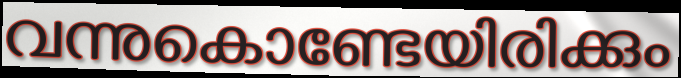
വന്നുകൊണ്ടേയിരിക്കും